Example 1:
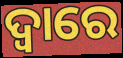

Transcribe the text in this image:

ଦ୍ବାରେ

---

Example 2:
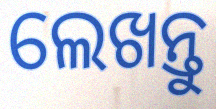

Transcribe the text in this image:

ଲେଖନ୍ତୁ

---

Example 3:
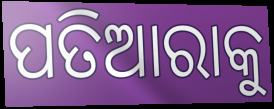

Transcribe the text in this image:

ପତିଆରାକୁ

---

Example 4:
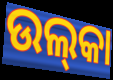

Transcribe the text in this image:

ଉଲ୍‍କା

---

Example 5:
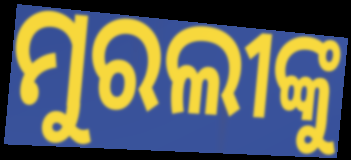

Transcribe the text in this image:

ମୁରଲୀଙ୍କୁ